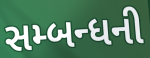
સમ્બન્ધની